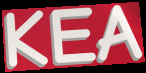
KEA